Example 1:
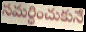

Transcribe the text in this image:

సమర్ధించుకునే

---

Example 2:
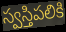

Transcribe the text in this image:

స్వస్తిపలికి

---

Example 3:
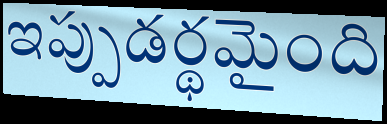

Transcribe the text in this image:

ఇప్పుడర్థమైంది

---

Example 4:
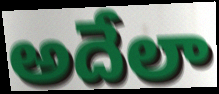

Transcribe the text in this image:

అదేలా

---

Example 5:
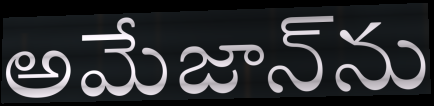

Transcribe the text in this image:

అమేజాన్‌ను